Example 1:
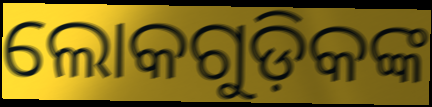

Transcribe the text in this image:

ଲୋକଗୁଡ଼ିକଙ୍କ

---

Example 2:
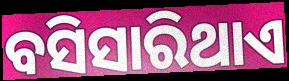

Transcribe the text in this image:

ବସିସାରିଥାଏ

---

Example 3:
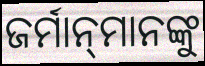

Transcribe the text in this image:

ଜର୍ମାନ୍‌ମାନଙ୍କୁ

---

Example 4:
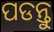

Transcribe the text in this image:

ପଡନ୍ତୁ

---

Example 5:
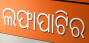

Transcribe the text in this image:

ଲଫାପାଟିର